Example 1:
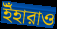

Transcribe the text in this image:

ইঁহারাও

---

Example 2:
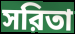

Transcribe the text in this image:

সরিতা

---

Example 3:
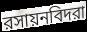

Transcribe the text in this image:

রসায়নবিদরা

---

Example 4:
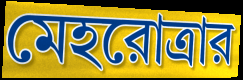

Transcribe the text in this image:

মেহরোত্রার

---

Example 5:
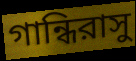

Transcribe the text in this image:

গান্ধিরাসু